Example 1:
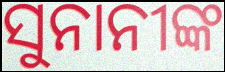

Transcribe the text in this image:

ସୁନାନୀଙ୍କ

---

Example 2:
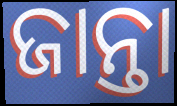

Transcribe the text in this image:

ଜାନ୍ତା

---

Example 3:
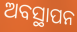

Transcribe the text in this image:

ଅବସ୍ଥାପନ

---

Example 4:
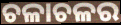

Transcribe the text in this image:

ଚଳାଚଳର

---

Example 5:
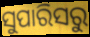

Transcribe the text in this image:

ସୁପାରିସରୁ